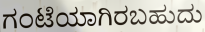
ಗಂಟೆಯಾಗಿರಬಹುದು